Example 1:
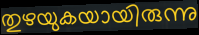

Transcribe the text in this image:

തുഴയുകയായിരുന്നു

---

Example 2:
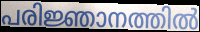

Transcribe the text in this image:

പരിജ്ഞാനത്തിൽ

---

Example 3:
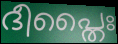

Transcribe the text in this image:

ദീപ്തൈഃ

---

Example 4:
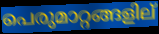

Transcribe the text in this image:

പെരുമാറ്റങ്ങളില്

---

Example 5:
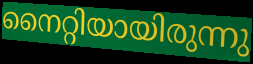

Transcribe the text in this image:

നൈറ്റിയായിരുന്നു